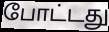
போட்டது